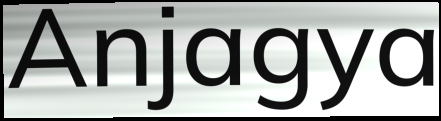
Anjagya